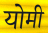
योमी